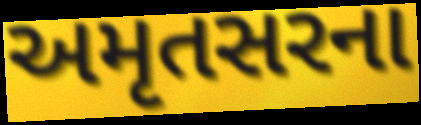
અમૃતસરના